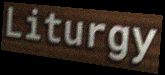
Liturgy